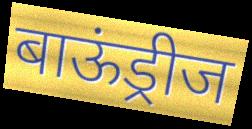
बाऊंड्रीज